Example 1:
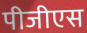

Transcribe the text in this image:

पीजीएस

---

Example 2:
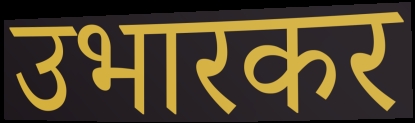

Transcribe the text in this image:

उभारकर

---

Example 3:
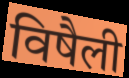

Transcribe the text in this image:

विषैली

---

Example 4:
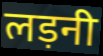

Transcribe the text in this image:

लड़नी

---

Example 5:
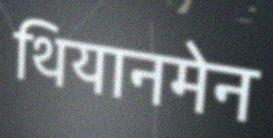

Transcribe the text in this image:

थियानमेन